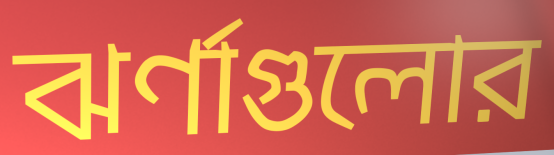
ঝর্ণাগুলোর